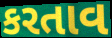
કરતાવ